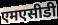
एमएसीडी